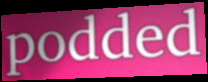
podded